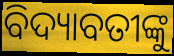
ବିଦ୍ୟାବତୀଙ୍କୁ